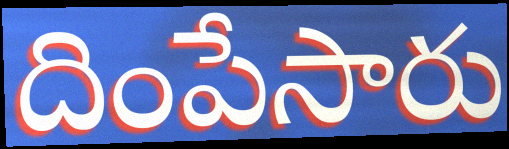
దింపేసారు